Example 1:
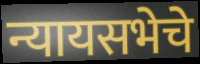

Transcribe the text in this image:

न्यायसभेचे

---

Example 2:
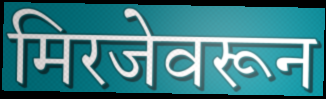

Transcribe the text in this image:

मिरजेवरून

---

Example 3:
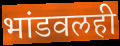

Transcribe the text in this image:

भांडवलही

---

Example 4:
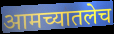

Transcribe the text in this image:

आमच्यातलेच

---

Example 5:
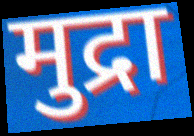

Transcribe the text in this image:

मुद्रा